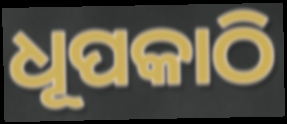
ଧୂପକାଠି